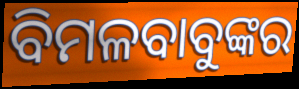
ବିମଳବାବୁଙ୍କର